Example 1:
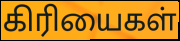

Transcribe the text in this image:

கிரியைகள்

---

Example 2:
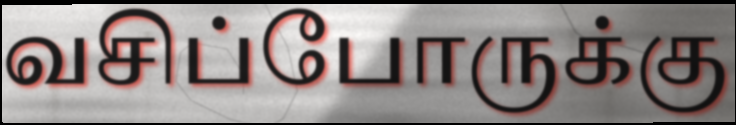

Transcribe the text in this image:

வசிப்போருக்கு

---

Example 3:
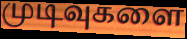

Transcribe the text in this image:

முடிவுகளை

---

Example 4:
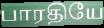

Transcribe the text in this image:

பாரதியே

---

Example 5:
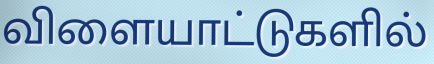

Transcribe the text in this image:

விளையாட்டுகளில்